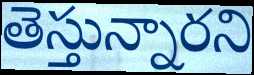
తెస్తున్నారని